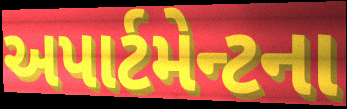
અપાર્ટમેન્ટના